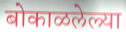
बोकाळलेल्या